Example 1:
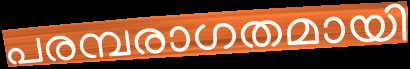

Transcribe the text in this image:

പരമ്പരാഗതമായി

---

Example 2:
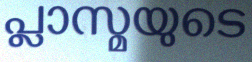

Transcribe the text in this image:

പ്ലാസ്മയുടെ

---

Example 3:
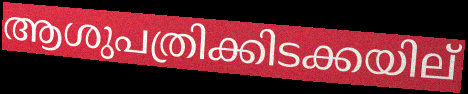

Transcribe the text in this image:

ആശുപത്രിക്കിടക്കയില്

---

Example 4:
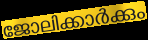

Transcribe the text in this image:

ജോലിക്കാർക്കും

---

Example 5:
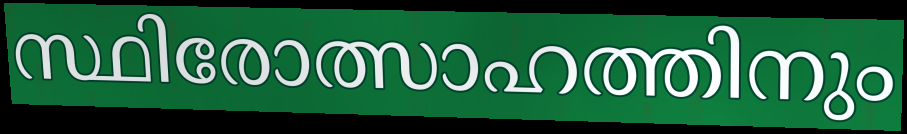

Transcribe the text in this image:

സ്ഥിരോത്സാഹത്തിനും